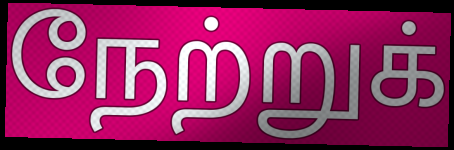
நேற்றுக்